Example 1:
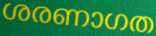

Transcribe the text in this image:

ശരണാഗത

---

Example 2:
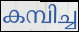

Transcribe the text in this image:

കമ്പിച്ച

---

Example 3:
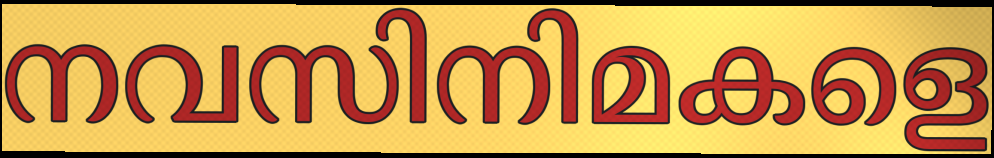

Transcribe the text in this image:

നവസിനിമകളെ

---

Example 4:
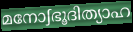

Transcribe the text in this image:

മനോഽഭൂദിത്യാഹ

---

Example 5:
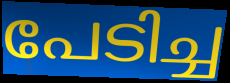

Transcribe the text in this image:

പേടിച്ച